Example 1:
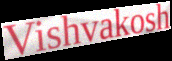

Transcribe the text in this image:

Vishvakosh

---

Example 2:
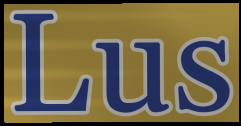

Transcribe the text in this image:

Lus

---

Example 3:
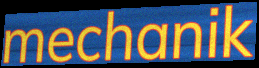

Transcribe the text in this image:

mechanik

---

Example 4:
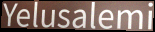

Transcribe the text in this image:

Yelusalemi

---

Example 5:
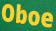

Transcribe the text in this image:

Oboe